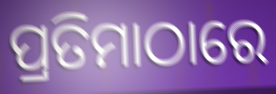
ପ୍ରତିମାଠାରେ